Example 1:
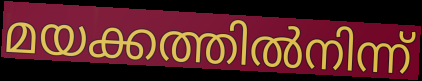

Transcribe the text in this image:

മയക്കത്തിൽനിന്ന്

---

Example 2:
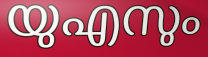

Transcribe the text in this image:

യുഎസും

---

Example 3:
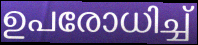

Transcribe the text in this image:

ഉപരോധിച്ച്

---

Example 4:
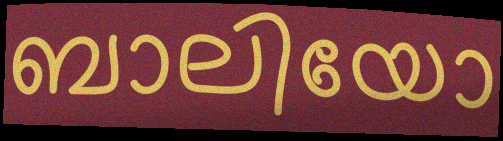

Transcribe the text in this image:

ബാലിയോ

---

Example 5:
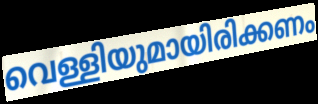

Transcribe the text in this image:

വെള്ളിയുമായിരിക്കണം